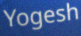
Yogesh